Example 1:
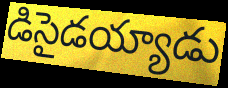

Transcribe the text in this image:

డిసైడయ్యాడు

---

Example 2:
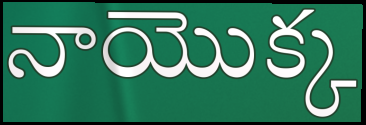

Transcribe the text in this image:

నాయొక్క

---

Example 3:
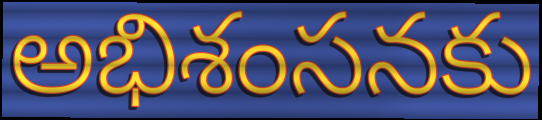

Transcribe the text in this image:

అభిశంసనకు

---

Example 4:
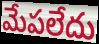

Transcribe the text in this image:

మేపలేదు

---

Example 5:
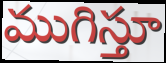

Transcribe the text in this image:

ముగిస్తూ